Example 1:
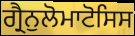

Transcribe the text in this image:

ਗ੍ਰੈਨੁਲੋਮਾਟੋਸਿਸ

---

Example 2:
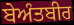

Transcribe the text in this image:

ਬੇਅੰਤਬੀਰ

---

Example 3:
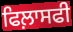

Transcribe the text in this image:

ਫਿਲ਼ਾਸਫੀ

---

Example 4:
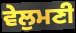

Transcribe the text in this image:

ਵੇਲੁਮਣੀ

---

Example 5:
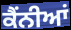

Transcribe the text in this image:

ਕੈਂਨੀਆਂ